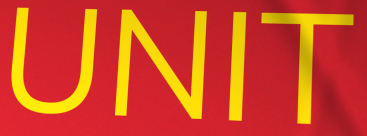
UNIT